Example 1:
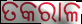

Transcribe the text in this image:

ତକରାଳ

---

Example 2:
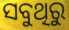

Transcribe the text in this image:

ସବୁଥିରୁ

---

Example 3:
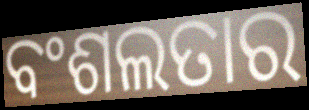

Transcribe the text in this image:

ବଂଶଲତାର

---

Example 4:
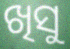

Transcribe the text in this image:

ଖିସୁ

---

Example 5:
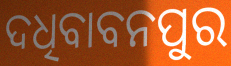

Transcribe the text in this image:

ଦଧିବାବନପୁର